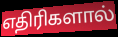
எதிரிகளால்